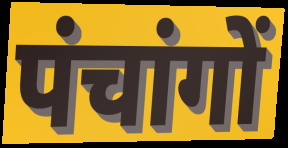
पंचांगों